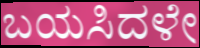
ಬಯಸಿದಳೇ